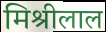
मिश्रीलाल